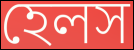
হেলস